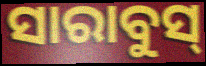
ସାରାବୁସ୍